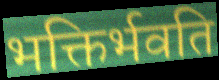
भक्तिर्भवति